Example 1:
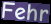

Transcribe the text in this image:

Fehr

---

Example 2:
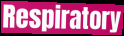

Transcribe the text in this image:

Respiratory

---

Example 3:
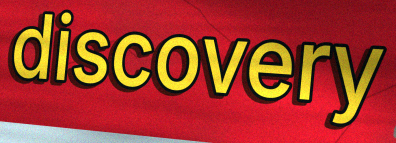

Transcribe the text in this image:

discovery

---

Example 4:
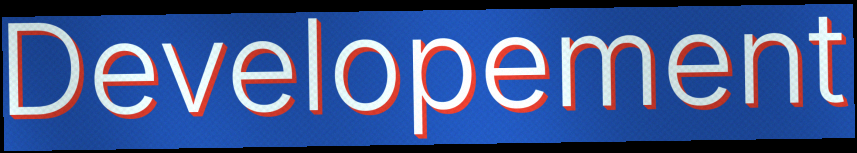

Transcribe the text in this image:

Developement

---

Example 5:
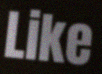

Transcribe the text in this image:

Like